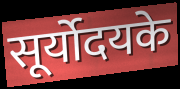
सूर्योदयके